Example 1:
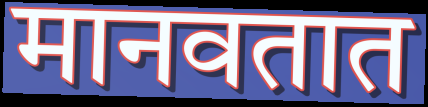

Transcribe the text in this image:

मानवतात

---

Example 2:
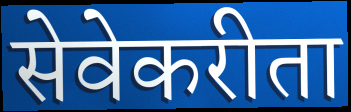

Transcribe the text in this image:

सेवेकरीता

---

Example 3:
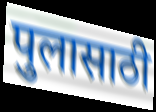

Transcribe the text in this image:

पुलासाठी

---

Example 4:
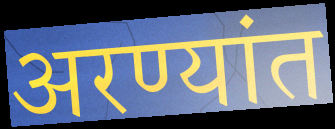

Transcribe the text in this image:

अरण्यांत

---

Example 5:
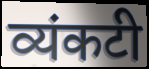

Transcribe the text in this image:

व्यंकटी